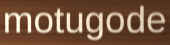
motugode